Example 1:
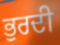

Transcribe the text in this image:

ਭੁਰਦੀ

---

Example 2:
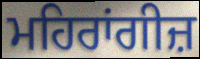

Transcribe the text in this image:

ਮਹਿਰਾਂਗੀਜ਼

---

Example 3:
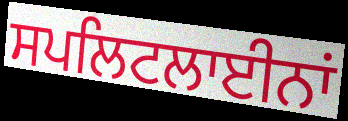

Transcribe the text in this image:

ਸਪਲਿਟਲਾਈਨਾਂ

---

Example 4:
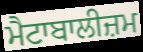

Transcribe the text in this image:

ਮੈਟਾਬਾਲੀਜ਼ਮ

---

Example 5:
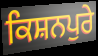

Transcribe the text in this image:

ਕਿਸ਼ਨਪੁਰੇ